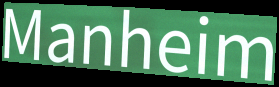
Manheim